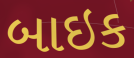
બાઇક